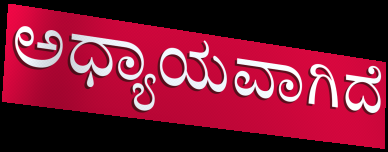
ಅಧ್ಯಾಯವಾಗಿದೆ